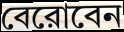
বেরোবেন